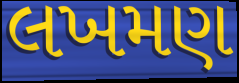
લખમણ